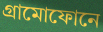
গ্রামোফোনে